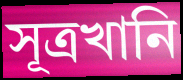
সূত্রখানি